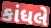
કાંધલે